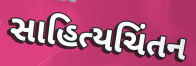
સાહિત્યચિંતન